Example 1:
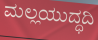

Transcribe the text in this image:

ಮಲ್ಲಯುದ್ಧದಿ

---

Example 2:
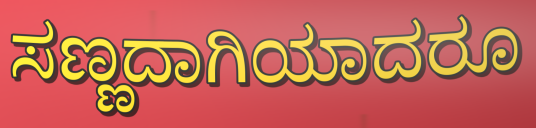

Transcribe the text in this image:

ಸಣ್ಣದಾಗಿಯಾದರೂ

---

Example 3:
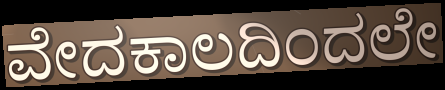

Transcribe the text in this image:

ವೇದಕಾಲದಿಂದಲೇ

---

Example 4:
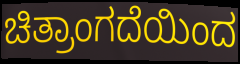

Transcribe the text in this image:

ಚಿತ್ರಾಂಗದೆಯಿಂದ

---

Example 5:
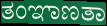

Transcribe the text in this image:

ತಂಞಾಣತಾ